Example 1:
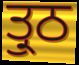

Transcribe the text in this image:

ਤ੍ਰੁਠ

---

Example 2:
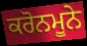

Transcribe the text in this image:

ਕਰੋਨਮੂਨੇ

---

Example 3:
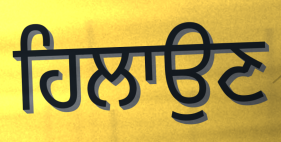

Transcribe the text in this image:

ਹਿਲਾਉਣ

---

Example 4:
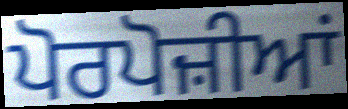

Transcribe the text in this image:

ਪੋਰਪੋਜ਼ੀਆਂ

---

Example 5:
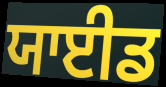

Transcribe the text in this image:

ਯਾਈਡ